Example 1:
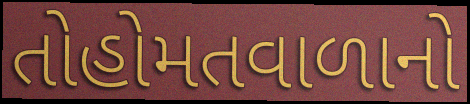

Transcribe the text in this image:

તોહોમતવાળાનો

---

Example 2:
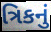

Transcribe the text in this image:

ત્રિકનું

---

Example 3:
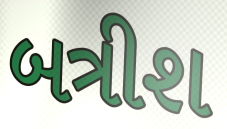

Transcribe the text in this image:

બત્રીશ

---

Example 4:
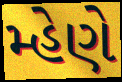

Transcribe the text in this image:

મ્હેણે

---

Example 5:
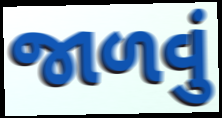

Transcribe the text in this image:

જાળવું